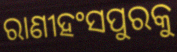
ରାଣୀହଂସପୁରକୁ